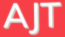
AJT